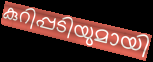
കുറിപ്പടിയുമായി